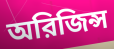
অরিজিন্স